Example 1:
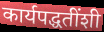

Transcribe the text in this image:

कार्यपद्धतींशी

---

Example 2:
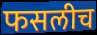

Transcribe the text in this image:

फसलीच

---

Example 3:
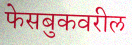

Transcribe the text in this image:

फेसबुकवरील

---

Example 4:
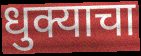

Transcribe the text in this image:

धुक्याचा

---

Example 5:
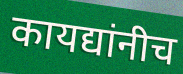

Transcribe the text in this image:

कायद्यांनीच